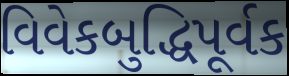
વિવેકબુદ્ધિપૂર્વક